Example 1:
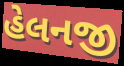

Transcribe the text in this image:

હેલનજી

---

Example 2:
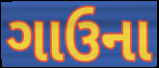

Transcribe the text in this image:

ગાઉના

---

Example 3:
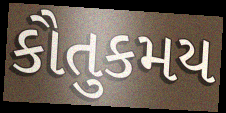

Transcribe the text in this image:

કૌતુકમય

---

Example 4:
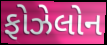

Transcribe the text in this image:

ફોઝેલોન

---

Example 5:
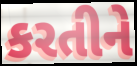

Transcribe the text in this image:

કરતીને